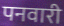
पनवारी